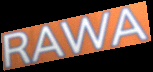
RAWA